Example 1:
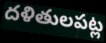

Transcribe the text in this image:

దళితులపట్ల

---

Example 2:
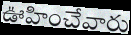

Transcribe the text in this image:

ఊహించేవారు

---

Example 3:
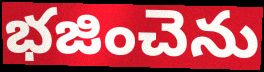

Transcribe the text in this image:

భజించెను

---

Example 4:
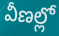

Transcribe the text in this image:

వీణల్లో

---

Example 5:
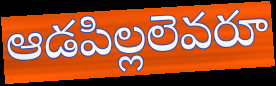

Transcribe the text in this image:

ఆడపిల్లలెవరూ